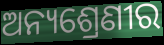
ଅନ୍ୟଶ୍ରେଣୀର